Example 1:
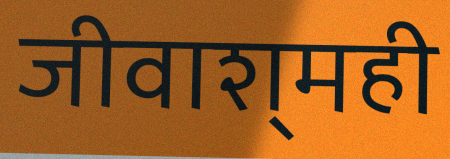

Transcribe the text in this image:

जीवाश्मही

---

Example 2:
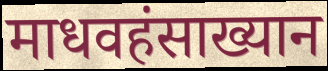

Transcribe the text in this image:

माधवहंसाख्यान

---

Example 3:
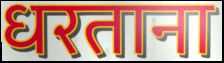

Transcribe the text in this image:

धरताना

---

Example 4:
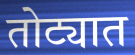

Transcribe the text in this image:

तोट्यात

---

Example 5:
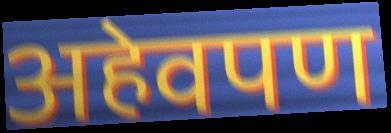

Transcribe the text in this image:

अहेवपण